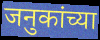
जनुकांच्या